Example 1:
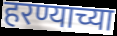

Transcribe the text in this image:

हरण्याच्या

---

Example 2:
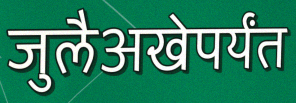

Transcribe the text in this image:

जुलैअखेपर्यंत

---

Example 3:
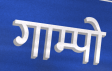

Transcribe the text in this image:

गाम्पो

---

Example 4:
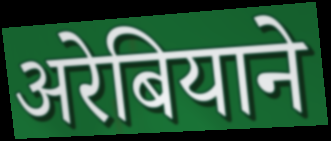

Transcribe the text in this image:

अरेबियाने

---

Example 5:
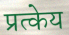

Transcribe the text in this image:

प्रत्केय